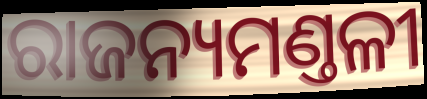
ରାଜନ୍ୟମଣ୍ତଳୀ